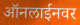
ऑनलाईनवर